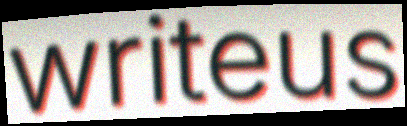
writeus